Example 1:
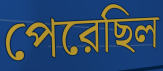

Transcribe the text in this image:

পেরেছিল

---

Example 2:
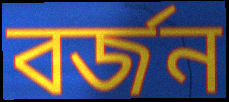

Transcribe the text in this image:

বর্জন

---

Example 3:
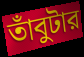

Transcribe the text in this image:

তাঁবুটার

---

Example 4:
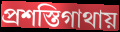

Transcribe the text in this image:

প্রশস্তিগাথায়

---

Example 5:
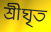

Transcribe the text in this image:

শ্রীঘৃত